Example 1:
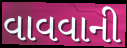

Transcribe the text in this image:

વાવવાની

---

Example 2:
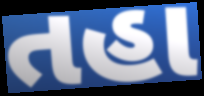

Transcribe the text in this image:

તહા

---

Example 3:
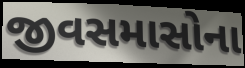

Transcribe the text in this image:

જીવસમાસોના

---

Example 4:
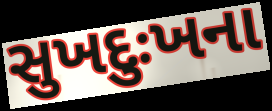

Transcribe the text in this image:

સુખદુઃખના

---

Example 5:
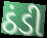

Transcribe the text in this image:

ઠંડી